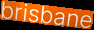
brisbane